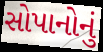
સોપાનોનું